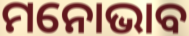
ମନୋଭାବ